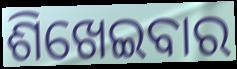
ଶିଖେଇବାର